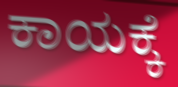
ಕಾಯಕ್ಕೆ